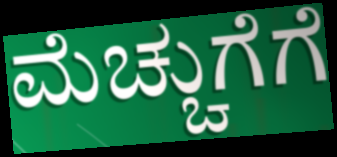
ಮೆಚ್ಚುಗೆಗೆ